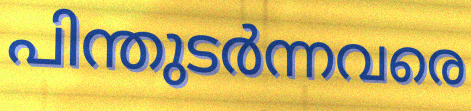
പിന്തുടർന്നവരെ